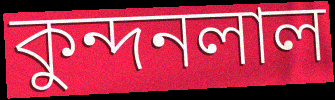
কুন্দনলাল